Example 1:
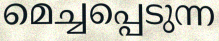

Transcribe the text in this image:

മെച്ചപ്പെടുന്ന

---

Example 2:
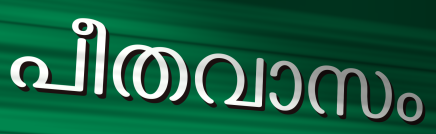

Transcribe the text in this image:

പീതവാസം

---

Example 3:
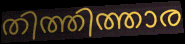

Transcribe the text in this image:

തിത്തിത്താര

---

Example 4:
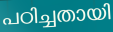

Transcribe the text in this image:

പഠിച്ചതായി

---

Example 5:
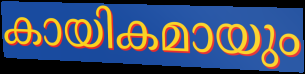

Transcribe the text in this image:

കായികമായും